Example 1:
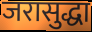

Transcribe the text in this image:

जरासुद्धा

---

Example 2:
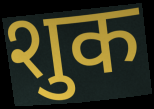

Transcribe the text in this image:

शुक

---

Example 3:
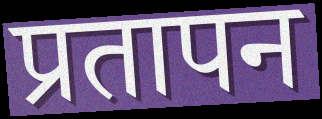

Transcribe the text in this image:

प्रतापन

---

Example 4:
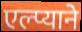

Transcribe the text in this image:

एल्प्याने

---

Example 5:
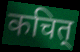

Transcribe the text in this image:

कचित्